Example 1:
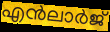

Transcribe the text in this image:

എൻലാർജ്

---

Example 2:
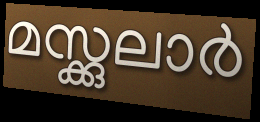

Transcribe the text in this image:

മസ്ക്കുലാർ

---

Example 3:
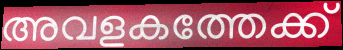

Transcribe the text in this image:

അവളകത്തേക്ക്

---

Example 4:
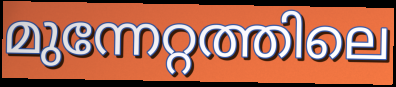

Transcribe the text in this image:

മുന്നേറ്റത്തിലെ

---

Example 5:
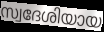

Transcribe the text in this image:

സ്വദേശിയായ